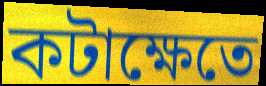
কটাক্ষেতে